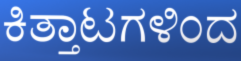
ಕಿತ್ತಾಟಗಳಿಂದ